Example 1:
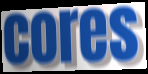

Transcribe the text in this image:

cores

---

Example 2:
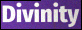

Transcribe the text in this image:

Divinity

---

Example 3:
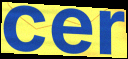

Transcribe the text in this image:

cer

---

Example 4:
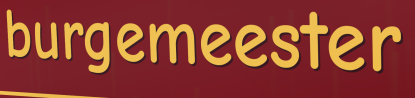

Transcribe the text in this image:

burgemeester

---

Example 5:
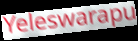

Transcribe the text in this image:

Yeleswarapu